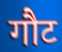
गौट